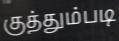
குத்தும்படி